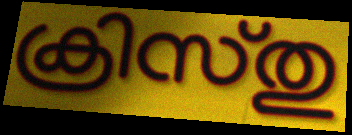
ക്രിസ്തു